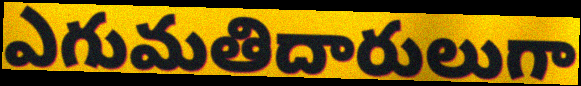
ఎగుమతిదారులుగా